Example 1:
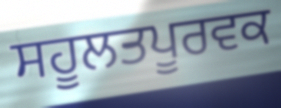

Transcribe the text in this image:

ਸਹੂਲਤਪੂਰਵਕ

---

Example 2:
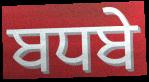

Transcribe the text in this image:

ਬਧਬੇ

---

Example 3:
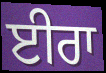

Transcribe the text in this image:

ਈਰਾ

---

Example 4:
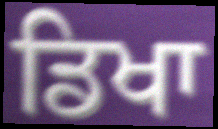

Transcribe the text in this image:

ਡਿਖਾ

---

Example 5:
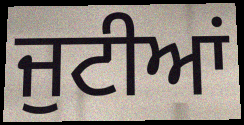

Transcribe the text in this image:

ਜੁਟੀਆਂ